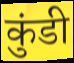
कुंडी